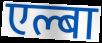
एल्बा